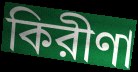
কিরীণা